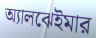
অ্যালঝেইমার